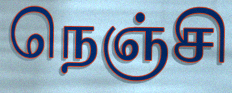
நெஞ்சி